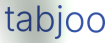
tabjoo